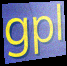
gpl